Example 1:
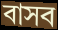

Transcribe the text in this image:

বাসব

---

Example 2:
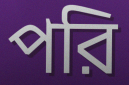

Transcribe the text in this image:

পরি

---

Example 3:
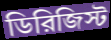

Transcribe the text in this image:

ডিরিজিস্ট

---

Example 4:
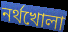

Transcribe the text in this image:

নর্থখোলা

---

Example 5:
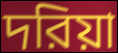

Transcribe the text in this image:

দরিয়া